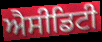
ਐਸੀਡਿਟੀ